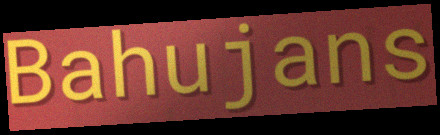
Bahujans